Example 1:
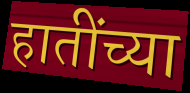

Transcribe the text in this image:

हातींच्या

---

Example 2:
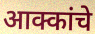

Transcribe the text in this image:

आक्कांचे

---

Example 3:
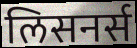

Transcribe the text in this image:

लिसनर्स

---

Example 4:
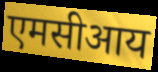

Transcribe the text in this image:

एमसीआय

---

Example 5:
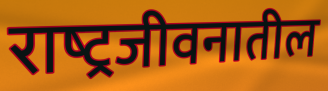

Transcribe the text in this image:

राष्ट्रजीवनातील